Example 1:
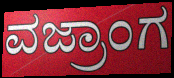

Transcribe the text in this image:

ವಜ್ರಾಂಗ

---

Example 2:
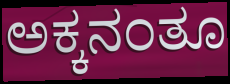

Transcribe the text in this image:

ಅಕ್ಕನಂತೂ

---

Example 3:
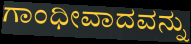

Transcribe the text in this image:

ಗಾಂಧೀವಾದವನ್ನು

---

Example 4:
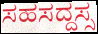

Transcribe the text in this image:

ಸಹಸದ್ದಸ್ಸ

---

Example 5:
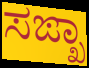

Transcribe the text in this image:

ಸಙ್ಖಾ